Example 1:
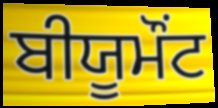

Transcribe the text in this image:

ਬੀਯੂਮੌਂਟ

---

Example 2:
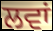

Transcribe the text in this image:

ਲਵਾਂ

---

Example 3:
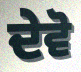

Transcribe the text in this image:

ਦੇਵੋ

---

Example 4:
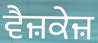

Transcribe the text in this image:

ਵੈਜ਼ਕੇਜ਼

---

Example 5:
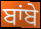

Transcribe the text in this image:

ਬਾਂਬੇ